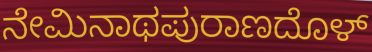
ನೇಮಿನಾಥಪುರಾಣದೊಳ್